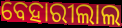
ବେହାରୀଲାଲ